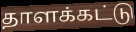
தாளக்கட்டு